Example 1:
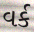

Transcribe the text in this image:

વર્ક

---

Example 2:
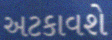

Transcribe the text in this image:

અટકાવશે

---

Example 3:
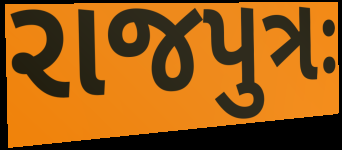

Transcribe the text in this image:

રાજપુત્રઃ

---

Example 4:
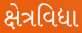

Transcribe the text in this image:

ક્ષેત્રવિદ્યા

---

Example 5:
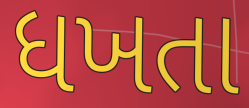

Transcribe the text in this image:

ધખતા